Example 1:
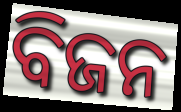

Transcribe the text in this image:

ବିଜନ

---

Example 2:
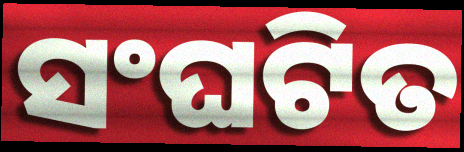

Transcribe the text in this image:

ସଂଘଟିତ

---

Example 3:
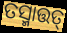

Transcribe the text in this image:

ତସ୍ମାତ୍ତତ୍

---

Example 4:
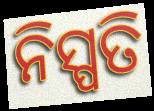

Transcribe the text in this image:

ନିସ୍ପତି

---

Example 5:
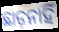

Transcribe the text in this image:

ଛାଡ଼ନାହିଁ